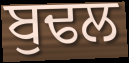
ਬੁਢਲ